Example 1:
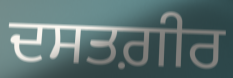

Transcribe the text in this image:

ਦਸਤਗ਼ੀਰ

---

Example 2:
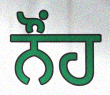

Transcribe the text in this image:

ਨੌੰਹ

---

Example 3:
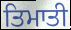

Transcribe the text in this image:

ਤਿਮਾਤੀ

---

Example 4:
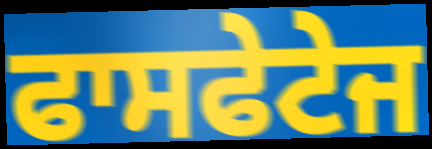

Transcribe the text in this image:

ਫਾਸਫੇਟੇਜ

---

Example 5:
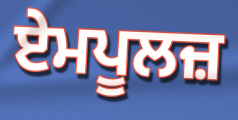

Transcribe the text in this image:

ਏਮਪੂਲਜ਼